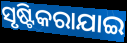
ସୃଷ୍ଟିକରାଯାଇ